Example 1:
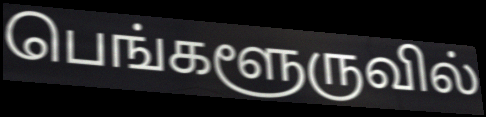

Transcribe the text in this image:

பெங்களூருவில்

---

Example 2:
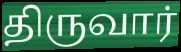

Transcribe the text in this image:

திருவார்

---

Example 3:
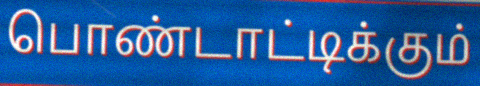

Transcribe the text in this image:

பொண்டாட்டிக்கும்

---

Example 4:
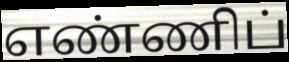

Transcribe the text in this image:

எண்ணிப்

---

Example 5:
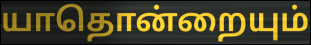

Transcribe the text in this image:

யாதொன்றையும்